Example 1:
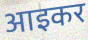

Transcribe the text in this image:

आइकर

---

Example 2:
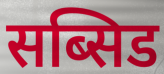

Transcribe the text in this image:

सब्सिड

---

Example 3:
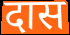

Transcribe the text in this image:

दास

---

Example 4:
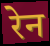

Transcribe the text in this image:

रेन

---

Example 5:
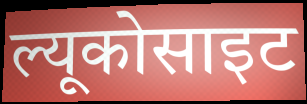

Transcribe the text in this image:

ल्यूकोसाइट